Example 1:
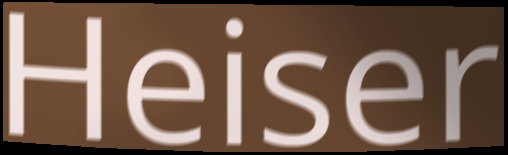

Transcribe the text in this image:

Heiser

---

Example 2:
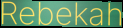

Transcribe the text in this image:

Rebekah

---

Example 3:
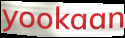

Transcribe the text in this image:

yookaan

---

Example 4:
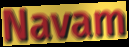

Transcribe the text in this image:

Navam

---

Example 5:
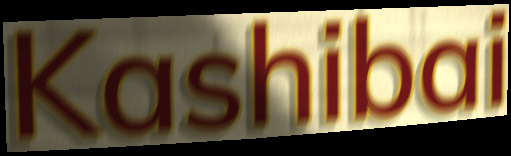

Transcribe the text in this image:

Kashibai